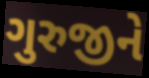
ગુરુજીને